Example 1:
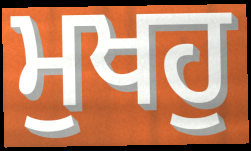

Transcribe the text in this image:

ਮੁਖਹੁ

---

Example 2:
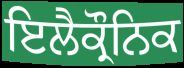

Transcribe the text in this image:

ਇਲੈਕ੍ਰੌਨਿਕ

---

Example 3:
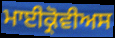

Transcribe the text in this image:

ਮਾਈਕ੍ਰੋਵੀਅਸ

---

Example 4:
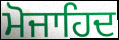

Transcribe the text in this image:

ਮੋਜਾਹਿਦ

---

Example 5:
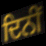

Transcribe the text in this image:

ਦਿਨੀਂ